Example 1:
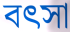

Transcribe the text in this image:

বৎসা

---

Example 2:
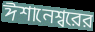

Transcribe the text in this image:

ঈশানেশ্বরের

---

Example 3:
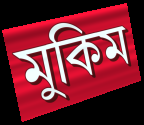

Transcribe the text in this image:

মুকিম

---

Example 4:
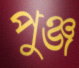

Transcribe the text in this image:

পুঞ্জ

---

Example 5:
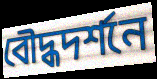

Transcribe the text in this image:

বৌদ্ধদর্শনে